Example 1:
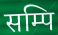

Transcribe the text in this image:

सम्पि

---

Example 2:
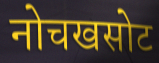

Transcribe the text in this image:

नोचखसोट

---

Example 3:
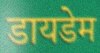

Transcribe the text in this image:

डायडेम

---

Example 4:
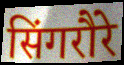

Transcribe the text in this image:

सिंगरौरे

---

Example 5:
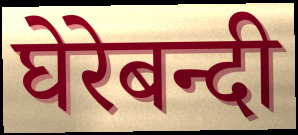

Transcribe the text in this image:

घेरेबन्दी